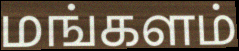
மங்களம்